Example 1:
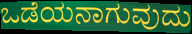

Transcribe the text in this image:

ಒಡೆಯನಾಗುವುದು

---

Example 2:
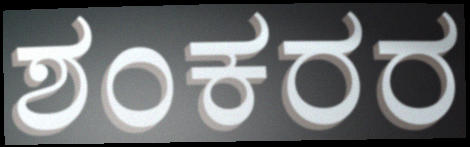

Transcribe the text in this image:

ಶಂಕರರ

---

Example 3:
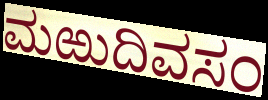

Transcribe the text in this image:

ಮಱುದಿವಸಂ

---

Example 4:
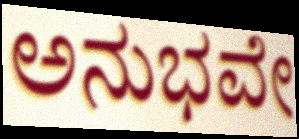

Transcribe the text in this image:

ಅನುಭವೇ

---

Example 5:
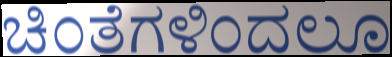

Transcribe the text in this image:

ಚಿಂತೆಗಳಿಂದಲೂ